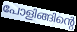
പോളിങ്ങിന്റെ